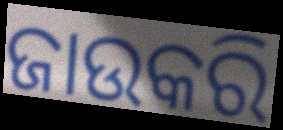
ଜାଉକରି